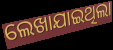
ଲେଖାଯାଇଥିଲା